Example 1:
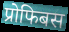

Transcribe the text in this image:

प्रोफिबस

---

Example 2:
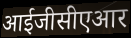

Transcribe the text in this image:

आईजीसीएआर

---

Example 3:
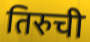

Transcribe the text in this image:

तिरुची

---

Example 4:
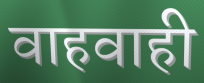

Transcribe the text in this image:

वाहवाही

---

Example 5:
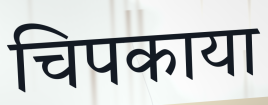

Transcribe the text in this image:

चिपकाया